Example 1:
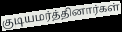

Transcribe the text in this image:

குடியமர்த்தினார்கள்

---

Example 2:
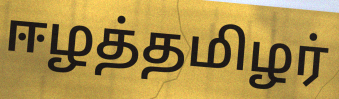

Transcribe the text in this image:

ஈழத்தமிழர்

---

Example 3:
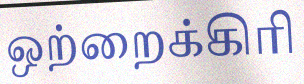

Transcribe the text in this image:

ஒற்றைக்கிரி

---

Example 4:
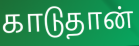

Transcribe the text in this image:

காடுதான்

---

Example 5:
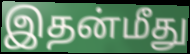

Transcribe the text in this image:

இதன்மீது